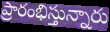
ప్రారంభిస్తున్నారు